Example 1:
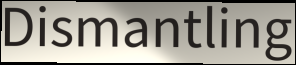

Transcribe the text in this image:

Dismantling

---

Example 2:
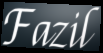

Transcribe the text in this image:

Fazil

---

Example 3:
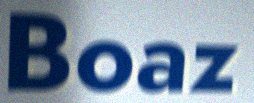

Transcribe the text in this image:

Boaz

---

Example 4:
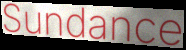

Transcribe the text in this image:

Sundance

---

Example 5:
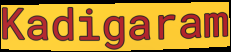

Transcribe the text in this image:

Kadigaram